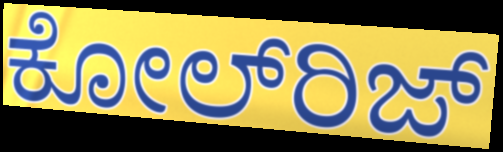
ಕೋಲ್‍ರಿಜ್